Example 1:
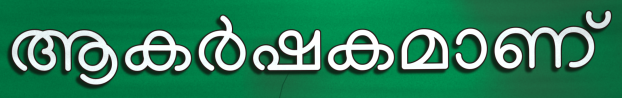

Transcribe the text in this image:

ആകർഷകമാണ്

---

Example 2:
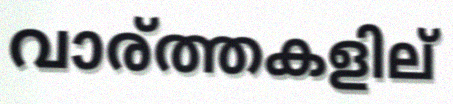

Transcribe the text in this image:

വാര്ത്തകളില്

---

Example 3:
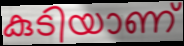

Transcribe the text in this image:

കുടിയാണ്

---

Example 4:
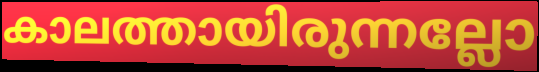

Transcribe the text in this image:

കാലത്തായിരുന്നല്ലോ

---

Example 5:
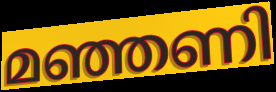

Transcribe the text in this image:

മഞ്ഞണി